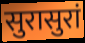
सुरासुरां